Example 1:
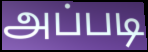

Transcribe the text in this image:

அப்படி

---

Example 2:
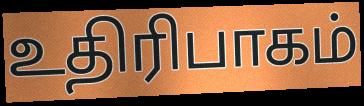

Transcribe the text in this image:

உதிரிபாகம்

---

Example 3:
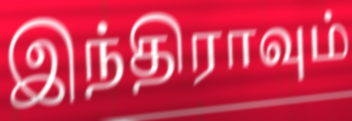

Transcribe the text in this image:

இந்திராவும்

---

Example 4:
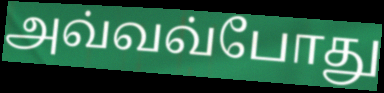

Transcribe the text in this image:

அவ்வவ்போது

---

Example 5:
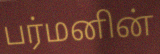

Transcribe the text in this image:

பர்மனின்